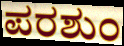
ಪರಶುಂ